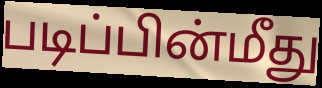
படிப்பின்மீது